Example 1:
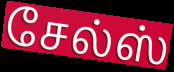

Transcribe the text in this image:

சேல்ஸ்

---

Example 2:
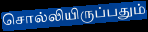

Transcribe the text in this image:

சொல்லியிருப்பதும்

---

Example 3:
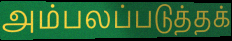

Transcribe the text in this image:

அம்பலப்படுத்தக்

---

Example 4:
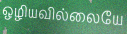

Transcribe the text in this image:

ஒழியவில்லையே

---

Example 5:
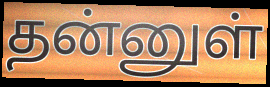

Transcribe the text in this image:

தன்னுள்